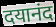
दयानंद